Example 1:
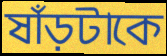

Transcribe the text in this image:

ষাঁড়টাকে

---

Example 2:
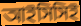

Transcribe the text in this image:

আইসিসিই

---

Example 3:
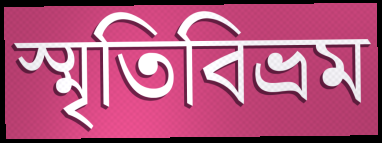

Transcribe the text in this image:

স্মৃতিবিভ্রম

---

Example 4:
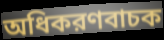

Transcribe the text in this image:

অধিকরণবাচক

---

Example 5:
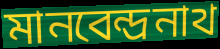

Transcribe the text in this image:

মানবেন্দ্রনাথ